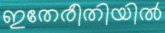
ഇതേരീതിയിൽ